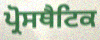
ਪ੍ਰੋਸਥੈਟਿਕ